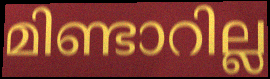
മിണ്ടാറില്ല